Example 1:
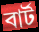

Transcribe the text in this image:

বাৰ্ট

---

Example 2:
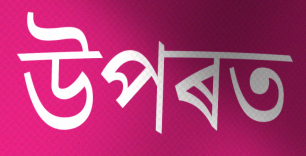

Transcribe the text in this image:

উপৰত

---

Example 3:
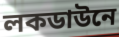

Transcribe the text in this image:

লকডাউনে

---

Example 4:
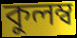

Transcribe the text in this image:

কুলম্ব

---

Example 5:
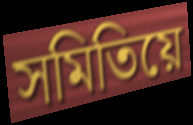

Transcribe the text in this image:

সমিতিয়ে